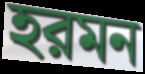
হরমন